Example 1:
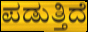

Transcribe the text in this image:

ಪಡುತ್ತಿದೆ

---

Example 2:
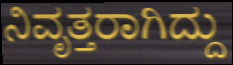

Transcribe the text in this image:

ನಿವೃತ್ತರಾಗಿದ್ದು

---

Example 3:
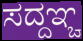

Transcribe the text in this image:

ಸದ್ದಞ್ಚ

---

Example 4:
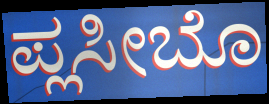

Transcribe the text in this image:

ಪ್ಲಸೀಬೊ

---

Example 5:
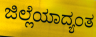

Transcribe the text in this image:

ಜಿಲ್ಲೆಯಾದ್ಯಂತ